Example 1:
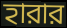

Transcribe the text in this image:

হারার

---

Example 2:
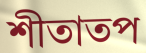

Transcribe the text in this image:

শীতাতপ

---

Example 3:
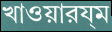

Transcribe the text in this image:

খাওয়ারয্ম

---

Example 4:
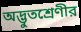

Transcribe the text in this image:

অদ্ভুতশ্রেণীর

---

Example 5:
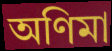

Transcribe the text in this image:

অণিমা